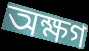
অক্ষগ